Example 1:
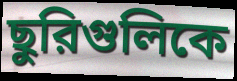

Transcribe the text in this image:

ছুরিগুলিকে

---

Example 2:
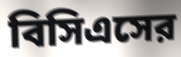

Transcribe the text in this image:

বিসিএসের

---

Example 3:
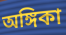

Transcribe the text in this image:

অঙ্গিকা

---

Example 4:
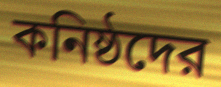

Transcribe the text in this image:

কনিষ্ঠদের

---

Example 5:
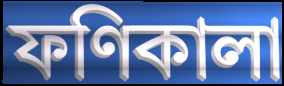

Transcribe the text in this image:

ফণিকালা